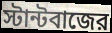
স্টান্টবাজের